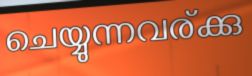
ചെയ്യുന്നവര്ക്കു